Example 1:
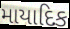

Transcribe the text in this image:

માયાદિક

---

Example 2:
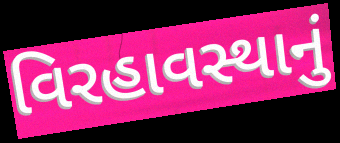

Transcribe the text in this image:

વિરહાવસ્થાનું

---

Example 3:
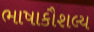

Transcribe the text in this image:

ભાષાકૌશલ્ય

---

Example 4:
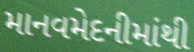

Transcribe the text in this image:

માનવમેદનીમાંથી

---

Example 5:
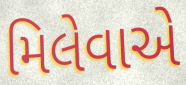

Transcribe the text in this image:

મિલેવાએ